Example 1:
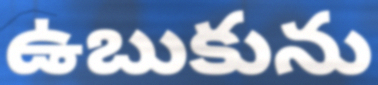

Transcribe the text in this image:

ఉబుకును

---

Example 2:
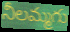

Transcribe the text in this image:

నీలమ్మగు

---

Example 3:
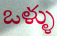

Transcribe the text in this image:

ఒళ్ళు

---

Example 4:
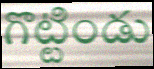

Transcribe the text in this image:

గొట్టిండు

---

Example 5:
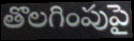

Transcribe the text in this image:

తొలగింపుపై